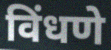
विंधणे